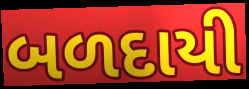
બળદાયી